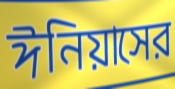
ঈনিয়াসের